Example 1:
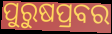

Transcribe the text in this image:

ପୁରୁଷପ୍ରବର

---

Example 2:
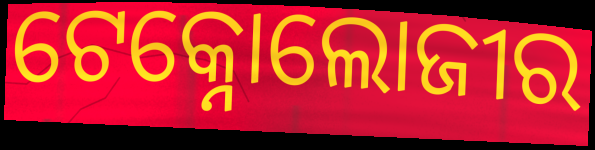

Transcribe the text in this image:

ଟେକ୍ନୋଲୋଜୀର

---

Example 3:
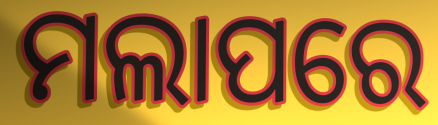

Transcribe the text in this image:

ମଲାପରେ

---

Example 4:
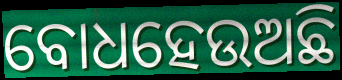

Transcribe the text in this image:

ବୋଧହେଉଅଛି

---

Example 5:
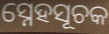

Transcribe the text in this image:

ସ୍ନେହସୂଚକ